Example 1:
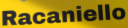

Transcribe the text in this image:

Racaniello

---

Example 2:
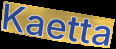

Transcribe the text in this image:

Kaetta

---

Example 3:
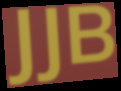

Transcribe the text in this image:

JJB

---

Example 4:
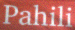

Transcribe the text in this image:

Pahili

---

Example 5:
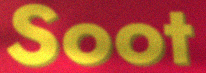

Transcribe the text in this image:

Soot